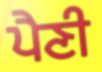
ਪੈਣੀ